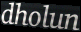
dholun